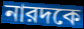
নারদকে